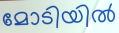
മോടിയിൽ